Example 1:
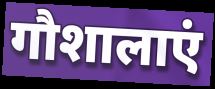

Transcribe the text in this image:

गौशालाएं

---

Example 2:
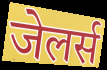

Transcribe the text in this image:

जेलर्स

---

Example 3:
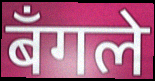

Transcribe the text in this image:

बँगले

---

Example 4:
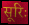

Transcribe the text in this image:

सूरिः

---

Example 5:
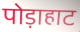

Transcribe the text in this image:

पोड़ाहाट